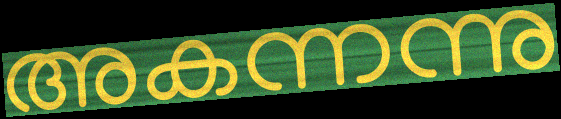
അകന്നന്നു